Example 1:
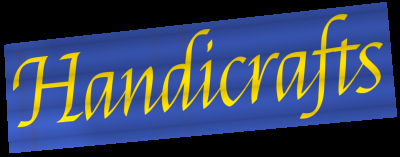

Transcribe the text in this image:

Handicrafts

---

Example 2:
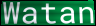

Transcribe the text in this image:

Watan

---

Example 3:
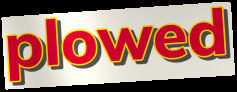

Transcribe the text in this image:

plowed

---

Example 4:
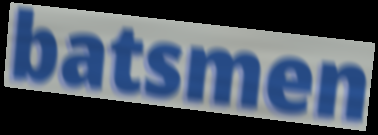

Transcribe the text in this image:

batsmen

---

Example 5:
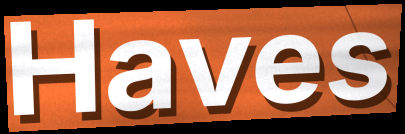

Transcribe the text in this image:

Haves